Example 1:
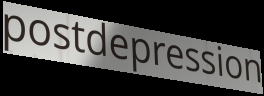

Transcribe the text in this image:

postdepression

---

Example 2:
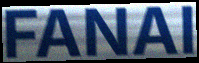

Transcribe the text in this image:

FANAI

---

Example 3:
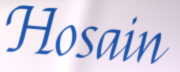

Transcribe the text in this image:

Hosain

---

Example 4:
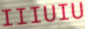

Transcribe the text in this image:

IIIUIU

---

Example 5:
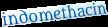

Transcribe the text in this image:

indomethacin